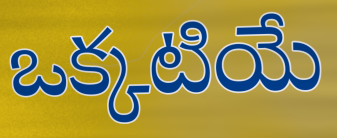
ఒక్కటియే